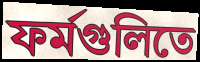
ফর্মগুলিতে